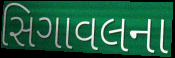
સિગાવલના